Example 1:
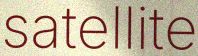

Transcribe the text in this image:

satellite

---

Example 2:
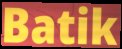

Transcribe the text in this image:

Batik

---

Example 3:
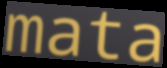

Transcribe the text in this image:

mata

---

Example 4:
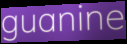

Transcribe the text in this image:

guanine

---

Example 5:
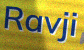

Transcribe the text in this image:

Ravji